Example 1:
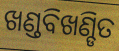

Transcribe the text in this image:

ଖଣ୍ଡବିଖଣ୍ଡିତ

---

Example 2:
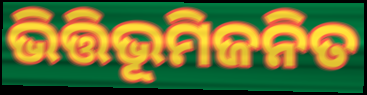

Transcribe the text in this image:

ଭିତ୍ତିଭୂମିଜନିତ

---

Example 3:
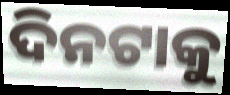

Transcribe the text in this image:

ଦିନଟାକୁ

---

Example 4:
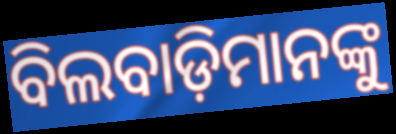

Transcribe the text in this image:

ବିଲବାଡ଼ିମାନଙ୍କୁ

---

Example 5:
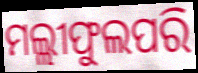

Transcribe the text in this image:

ମଲ୍ଲୀଫୁଲପରି